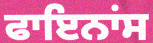
ਫਾਇਨਾਂਸ